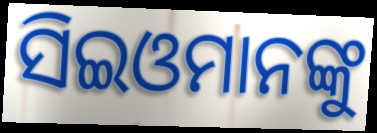
ସିଇଓମାନଙ୍କୁ